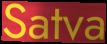
Satva